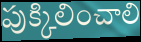
పుక్కిలించాలి